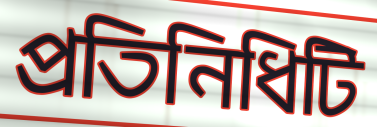
প্রতিনিধিটি